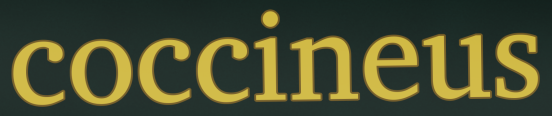
coccineus